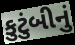
કુટુંબીનું